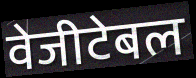
वेजीटेबल